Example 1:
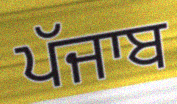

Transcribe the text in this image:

ਪੱਜਾਬ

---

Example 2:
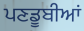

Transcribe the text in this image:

ਪਣਡੂਬੀਆਂ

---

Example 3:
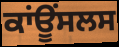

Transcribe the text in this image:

ਕਾਂਊਂਸਲਸ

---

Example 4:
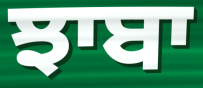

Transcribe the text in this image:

ਝਾਬਾ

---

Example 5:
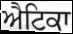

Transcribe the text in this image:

ਐਟਿਕਾ